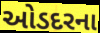
ઓડદરના